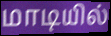
மாடியில்